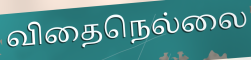
விதைநெல்லை